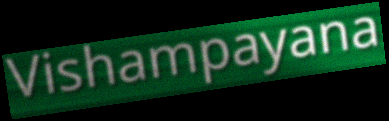
Vishampayana